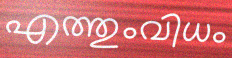
എത്തുംവിധം